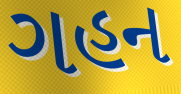
ગહન